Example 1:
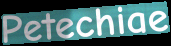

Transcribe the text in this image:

Petechiae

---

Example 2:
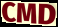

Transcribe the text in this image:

CMD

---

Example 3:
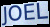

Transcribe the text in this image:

JOEL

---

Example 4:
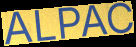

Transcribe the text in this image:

ALPAC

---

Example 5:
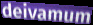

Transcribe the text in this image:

deivamum